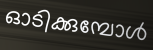
ഓടിക്കുമ്പോൾ